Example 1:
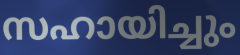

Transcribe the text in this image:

സഹായിച്ചും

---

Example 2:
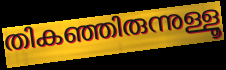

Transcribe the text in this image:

തികഞ്ഞിരുന്നുള്ളൂ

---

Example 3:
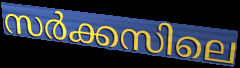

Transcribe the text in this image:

സർക്കസിലെ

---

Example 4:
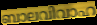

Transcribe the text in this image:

ബാലവിവാഹ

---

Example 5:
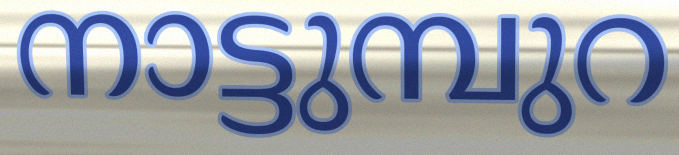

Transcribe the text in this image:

നാട്ടുമ്പുറ